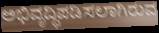
ಅಭಿವೃದ್ಧಿಪಡಿಸಲಾಗಿರುವ